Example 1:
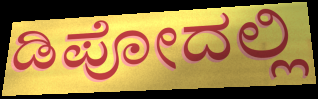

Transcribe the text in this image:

ಡಿಪೋದಲ್ಲಿ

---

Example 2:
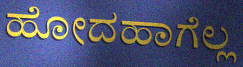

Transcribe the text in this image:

ಹೋದಹಾಗೆಲ್ಲ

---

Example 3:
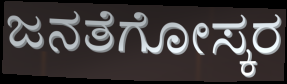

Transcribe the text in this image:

ಜನತೆಗೋಸ್ಕರ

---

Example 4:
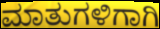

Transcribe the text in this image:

ಮಾತುಗಳಿಗಾಗಿ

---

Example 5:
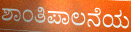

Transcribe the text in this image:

ಶಾಂತಿಪಾಲನೆಯ